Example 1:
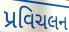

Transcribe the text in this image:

પ્રવિચલન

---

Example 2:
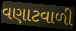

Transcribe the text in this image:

વણાટવાળી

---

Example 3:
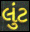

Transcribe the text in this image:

લુંટ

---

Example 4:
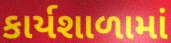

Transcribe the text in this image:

કાર્યશાળામાં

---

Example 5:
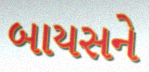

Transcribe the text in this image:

બાયસને